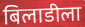
बिलाडीला